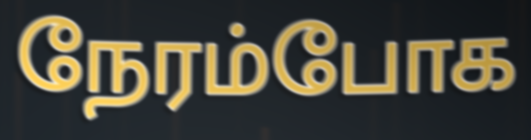
நேரம்போக